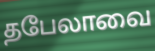
தபேலாவை